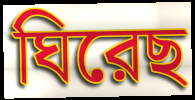
ঘিরেছ